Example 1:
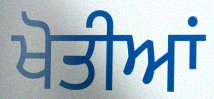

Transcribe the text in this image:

ਖੋਤੀਆਂ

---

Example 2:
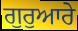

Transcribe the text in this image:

ਗੁਰੁਆਰੇ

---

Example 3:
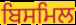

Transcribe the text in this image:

ਬਿਸਮਿਲ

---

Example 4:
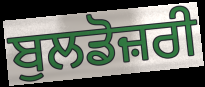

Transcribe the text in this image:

ਬੁਲਡੋਜ਼ਰੀ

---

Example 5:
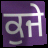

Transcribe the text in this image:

ਕੁਜੇ